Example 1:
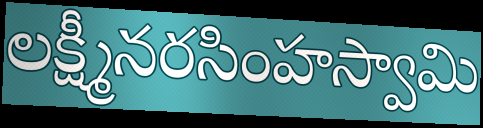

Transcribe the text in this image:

లక్ష్మీనరసింహస్వామి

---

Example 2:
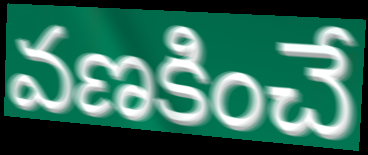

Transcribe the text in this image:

వణకించే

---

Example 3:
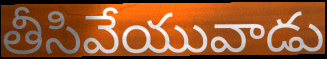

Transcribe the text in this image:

తీసివేయువాడు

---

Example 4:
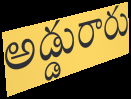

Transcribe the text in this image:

అడ్డురారు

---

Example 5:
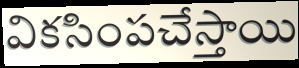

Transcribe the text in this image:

వికసింపచేస్తాయి